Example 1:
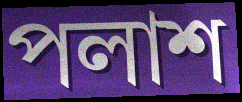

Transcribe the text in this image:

পলাশ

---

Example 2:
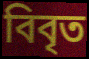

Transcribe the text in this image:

বিবৃত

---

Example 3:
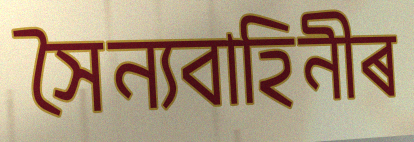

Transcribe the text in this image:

সৈন্যবাহিনীৰ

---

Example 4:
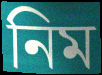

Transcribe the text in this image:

নিম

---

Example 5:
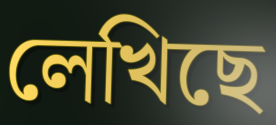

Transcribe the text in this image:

লেখিছে